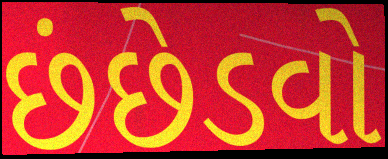
છંછેડવો